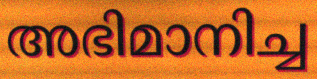
അഭിമാനിച്ച